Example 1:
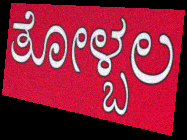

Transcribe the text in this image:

ತೋಳ್ಬಲ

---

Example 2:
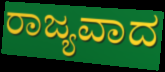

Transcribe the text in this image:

ರಾಜ್ಯವಾದ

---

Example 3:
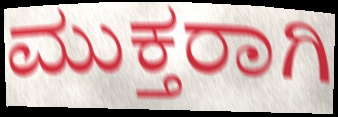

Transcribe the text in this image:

ಮುಕ್ತರಾಗಿ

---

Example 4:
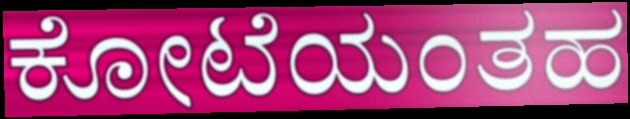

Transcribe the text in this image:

ಕೋಟೆಯಂತಹ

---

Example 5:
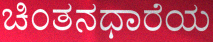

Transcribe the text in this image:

ಚಿಂತನಧಾರೆಯ